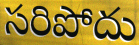
సరిపోదు